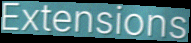
Extensions